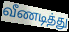
வீணடித்து